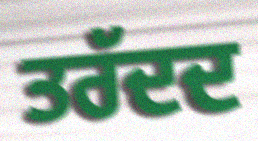
ਤਰੱਦਦ